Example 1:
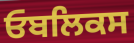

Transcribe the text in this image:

ਓਬਲਿਕਸ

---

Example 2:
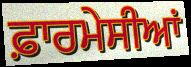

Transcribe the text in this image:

ਫ਼ਾਰਮੇਸੀਆਂ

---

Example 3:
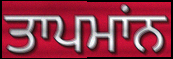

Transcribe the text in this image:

ਤਾਪਮਾਂਨ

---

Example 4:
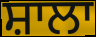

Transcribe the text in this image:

ਸ਼ਾਲਾ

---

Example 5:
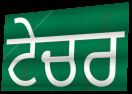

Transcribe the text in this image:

ਟੇਚਰ